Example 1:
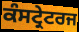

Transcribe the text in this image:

ਕੰਸਟ੍ਰੇਟਰਜ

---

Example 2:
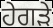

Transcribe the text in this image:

ਹੇਗੜੇ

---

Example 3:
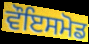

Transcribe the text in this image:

ਵੌਇਸਮੋਡ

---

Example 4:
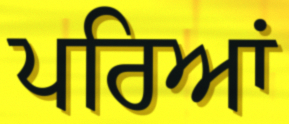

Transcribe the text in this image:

ਪਰਿਆਂ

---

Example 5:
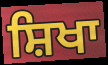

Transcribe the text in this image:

ਸ਼ਿਖਾ